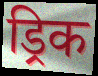
ड्रिक